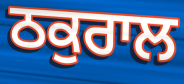
ਠਕੁਰਾਲ